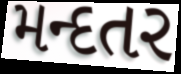
મન્દતર